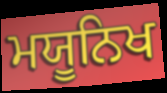
ਮਯੂਨਿਖ